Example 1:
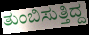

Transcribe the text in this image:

ತುಂಬಿಸುತ್ತಿದ್ದ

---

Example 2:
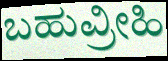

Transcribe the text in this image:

ಬಹುವ್ರೀಹಿ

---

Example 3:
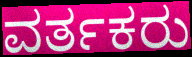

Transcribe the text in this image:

ವರ್ತಕರು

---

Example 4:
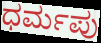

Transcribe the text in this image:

ಧರ್ಮಪು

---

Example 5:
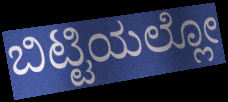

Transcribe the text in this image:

ಬಿಟ್ಟಿಯಲ್ಲೋ